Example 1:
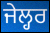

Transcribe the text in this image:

ਜੇਲ੍ਹਰ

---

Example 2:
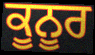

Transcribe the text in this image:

ਕੂਨੂਰ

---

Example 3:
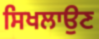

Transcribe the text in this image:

ਸਿਖਲਾਉਣ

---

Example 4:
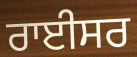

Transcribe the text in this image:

ਰਾਈਸਰ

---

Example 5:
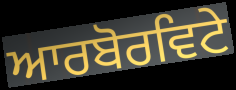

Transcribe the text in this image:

ਆਰਬੋਰਵਿਟੇ